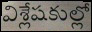
విశ్లేషకుల్లో